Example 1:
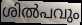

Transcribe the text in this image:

ശിൽപവും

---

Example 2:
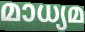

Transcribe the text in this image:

മാധ്യമ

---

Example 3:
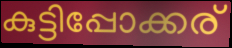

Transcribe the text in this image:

കുട്ടിപ്പോക്കര്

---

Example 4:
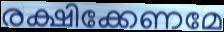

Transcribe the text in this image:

രക്ഷിക്കേണമേ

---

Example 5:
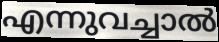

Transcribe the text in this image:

എന്നുവച്ചാൽ